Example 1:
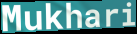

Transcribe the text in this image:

Mukhari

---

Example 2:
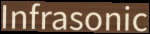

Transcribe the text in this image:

Infrasonic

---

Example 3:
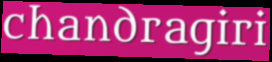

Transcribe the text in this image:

chandragiri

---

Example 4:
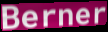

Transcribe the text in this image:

Berner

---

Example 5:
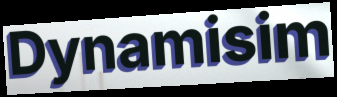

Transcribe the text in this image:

Dynamisim